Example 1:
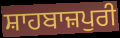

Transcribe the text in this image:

ਸ਼ਾਹਬਾਜ਼ਪੁਰੀ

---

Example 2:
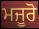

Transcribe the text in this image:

ਮਜੂਰੋ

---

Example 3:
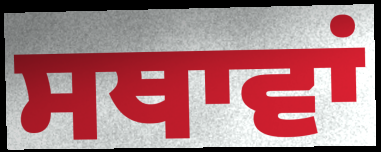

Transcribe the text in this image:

ਸਥਾਵਾਂ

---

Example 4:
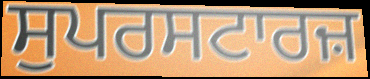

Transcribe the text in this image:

ਸੁਪਰਸਟਾਰਜ਼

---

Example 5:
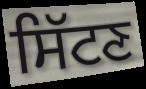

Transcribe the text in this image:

ਸਿੱਟਣ